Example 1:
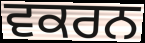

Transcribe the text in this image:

ਵਕਰਨ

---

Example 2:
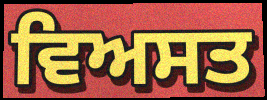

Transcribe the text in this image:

ਵਿਅਸਤ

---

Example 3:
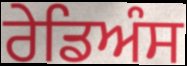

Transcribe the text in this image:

ਰੇਡਿਅੰਸ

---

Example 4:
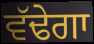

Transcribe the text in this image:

ਵੱਢੇਗਾ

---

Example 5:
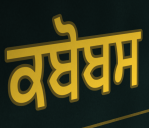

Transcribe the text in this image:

ਕਬੋਬਸ